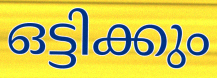
ഒട്ടിക്കും